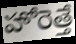
హోరెత్తే